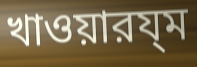
খাওয়ারয্ম